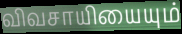
விவசாயியையும்